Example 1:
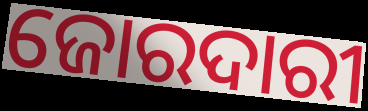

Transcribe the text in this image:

ଜୋରଦାରୀ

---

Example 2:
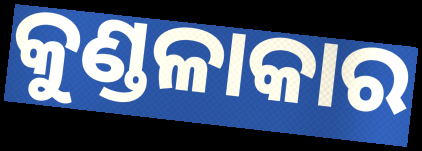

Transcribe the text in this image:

କୁଣ୍ଡଳାକାର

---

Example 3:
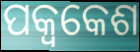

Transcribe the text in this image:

ପକ୍ଵକେଶ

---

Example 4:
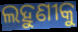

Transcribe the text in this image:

ଲହୁଣୀକୁ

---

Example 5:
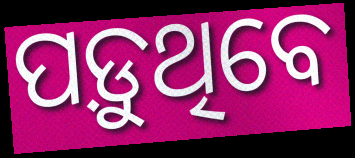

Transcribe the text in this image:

ପଡ଼ୁଥିବେ